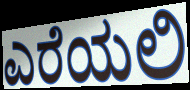
ಎರೆಯಲಿ